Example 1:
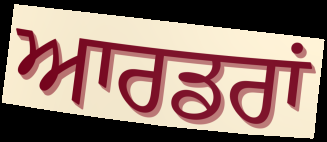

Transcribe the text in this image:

ਆਰਡਰਾਂ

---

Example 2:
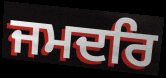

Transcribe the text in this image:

ਜਮਦਰਿ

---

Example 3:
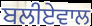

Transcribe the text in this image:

ਬਲੀਏਵਾਲ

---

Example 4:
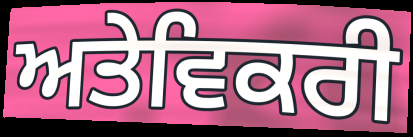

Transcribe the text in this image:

ਅਤੇਵਿਕਰੀ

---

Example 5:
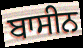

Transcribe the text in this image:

ਬਾਸੀਨ